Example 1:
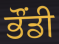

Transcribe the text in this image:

ਭੌਂਡੀ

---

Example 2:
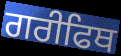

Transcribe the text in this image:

ਗਰੀਫਿਥ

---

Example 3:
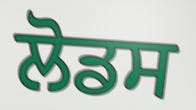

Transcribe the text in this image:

ਲੋਡਸ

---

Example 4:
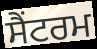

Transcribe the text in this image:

ਸੈਂਟਰਮ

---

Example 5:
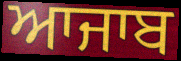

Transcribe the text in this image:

ਆਜਾਬ